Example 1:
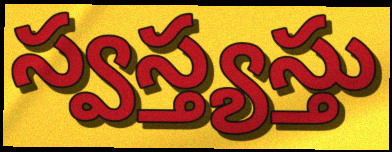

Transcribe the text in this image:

స్వస్త్యస్తు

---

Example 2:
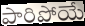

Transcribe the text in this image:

పారిపోయే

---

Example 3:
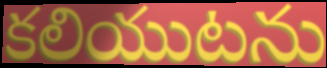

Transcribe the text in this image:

కలియుటను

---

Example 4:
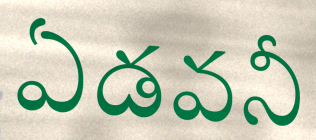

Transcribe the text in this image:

ఏడవనీ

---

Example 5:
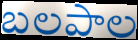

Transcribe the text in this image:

బలపాల